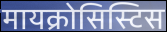
मायक्रोसिस्टिस